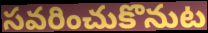
సవరించుకొనుట